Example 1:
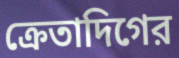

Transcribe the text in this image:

ক্রেতাদিগের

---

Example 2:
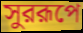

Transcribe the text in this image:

সুররূপে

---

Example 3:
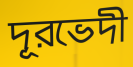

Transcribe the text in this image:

দূরভেদী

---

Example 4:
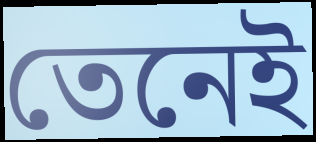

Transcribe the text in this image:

তেনেই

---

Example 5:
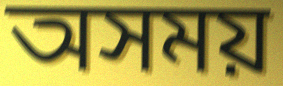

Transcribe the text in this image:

অসময়